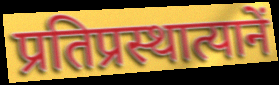
प्रतिप्रस्थात्यानें